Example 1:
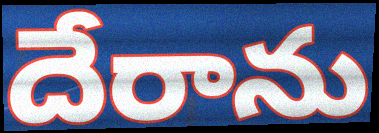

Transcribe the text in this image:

దేరాను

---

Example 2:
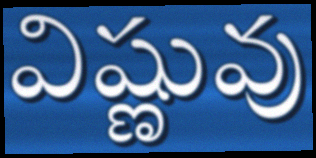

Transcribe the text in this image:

విష్ణువు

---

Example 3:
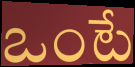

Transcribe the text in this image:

ఒంటే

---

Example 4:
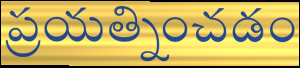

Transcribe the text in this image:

ప్రయత్నించడం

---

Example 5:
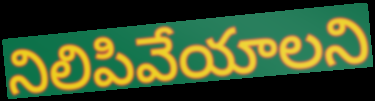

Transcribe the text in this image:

నిలిపివేయాలని